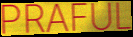
PRAFUL